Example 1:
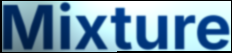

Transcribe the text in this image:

Mixture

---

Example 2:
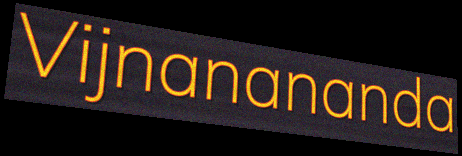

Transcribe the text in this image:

Vijnanananda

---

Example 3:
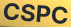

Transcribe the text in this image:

CSPC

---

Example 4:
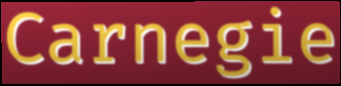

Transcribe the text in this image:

Carnegie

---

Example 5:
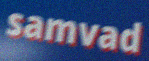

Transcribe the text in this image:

samvad